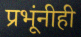
प्रभूंनीही